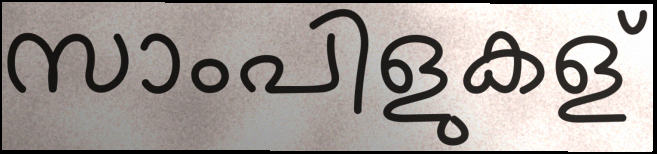
സാംപിളുകള്